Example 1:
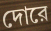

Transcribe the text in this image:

দোরে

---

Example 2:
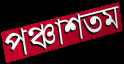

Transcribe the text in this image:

পঞ্চাশতম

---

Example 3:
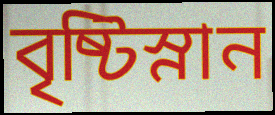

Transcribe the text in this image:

বৃষ্টিস্নান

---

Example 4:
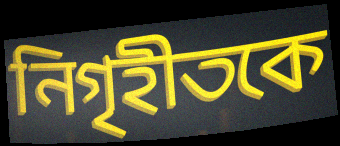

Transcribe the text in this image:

নিগৃহীতকে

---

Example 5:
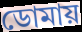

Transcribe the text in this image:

ডোমায়